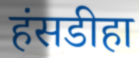
हंसडीहा